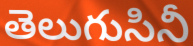
తెలుగుసినీ